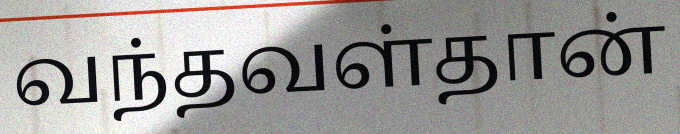
வந்தவள்தான்